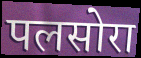
पलसोरा